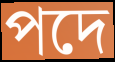
পদে